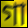
গা